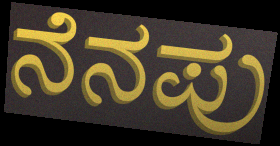
ನೆನಪು